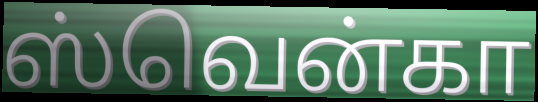
ஸ்வென்கா